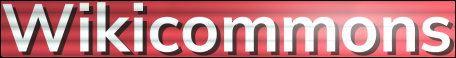
Wikicommons